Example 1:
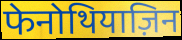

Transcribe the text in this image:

फेनोथियाज़िन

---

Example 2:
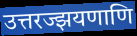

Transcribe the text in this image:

उत्तरज्झयणाणि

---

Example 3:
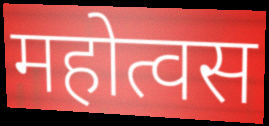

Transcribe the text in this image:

महोत्वस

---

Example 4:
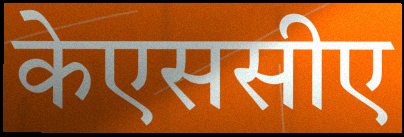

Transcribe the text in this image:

केएससीए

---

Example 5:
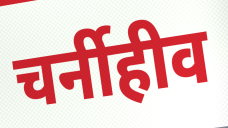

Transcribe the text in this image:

चर्नीहीव